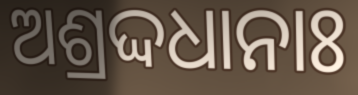
ଅଶ୍ରଦ୍ଦଧାନାଃ